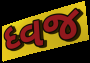
ધ્વજ